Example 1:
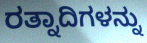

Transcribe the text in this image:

ರತ್ನಾದಿಗಳನ್ನು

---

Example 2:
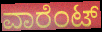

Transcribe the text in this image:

ವಾರೆಂಟ್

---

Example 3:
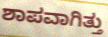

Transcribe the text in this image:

ಶಾಪವಾಗಿತ್ತು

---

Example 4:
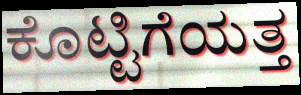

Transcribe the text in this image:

ಕೊಟ್ಟಿಗೆಯತ್ತ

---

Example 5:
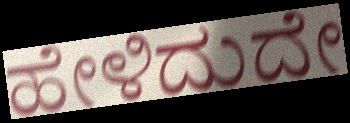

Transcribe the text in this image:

ಹೇಳಿದುದೇ